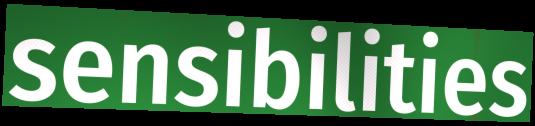
sensibilities